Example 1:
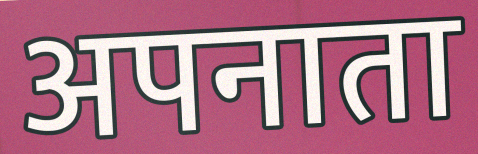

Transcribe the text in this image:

अपनाता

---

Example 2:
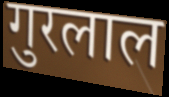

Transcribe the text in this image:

गुरलाल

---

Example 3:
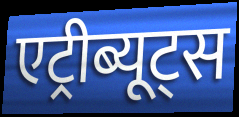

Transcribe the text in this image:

एट्रीब्यूट्स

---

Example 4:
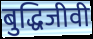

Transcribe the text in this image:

बुद्धिजीवी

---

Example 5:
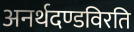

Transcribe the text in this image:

अनर्थदण्डविरति